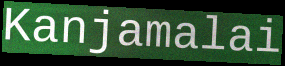
Kanjamalai